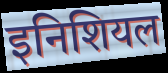
इनिशियल